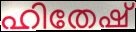
ഹിതേഷ്